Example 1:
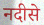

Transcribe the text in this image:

नदीसे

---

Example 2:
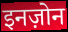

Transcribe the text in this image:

इनज़ोन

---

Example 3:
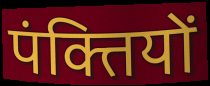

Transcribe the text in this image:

पंक्तियों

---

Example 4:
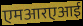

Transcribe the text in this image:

एमआरएआई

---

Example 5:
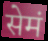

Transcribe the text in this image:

सेमं